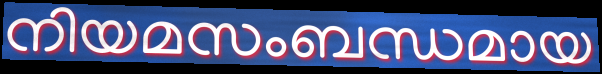
നിയമസംബന്ധമായ